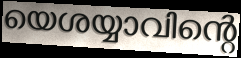
യെശയ്യാവിന്റെ